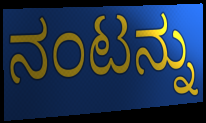
ನಂಟನ್ನು